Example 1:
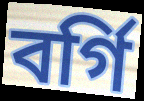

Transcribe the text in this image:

বর্গি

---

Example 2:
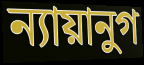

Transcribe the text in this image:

ন্যায়ানুগ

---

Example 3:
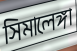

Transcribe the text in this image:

সিমালেঙ্গা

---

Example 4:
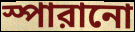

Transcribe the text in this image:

স্পারানো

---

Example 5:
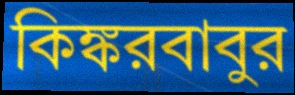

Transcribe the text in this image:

কিঙ্করবাবুর